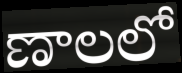
ణాలలో